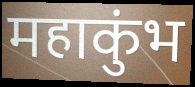
महाकुंभ